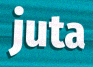
juta